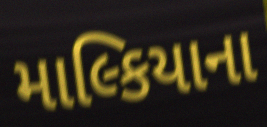
માલ્કિયાના